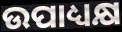
ଉପାଧ୍ୟକ୍ଷ